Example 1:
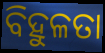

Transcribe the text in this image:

ବିହୁଳତା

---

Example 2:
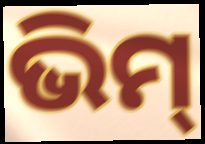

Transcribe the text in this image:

ଭିମ୍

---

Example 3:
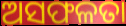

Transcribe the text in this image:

ଅସଫଳତା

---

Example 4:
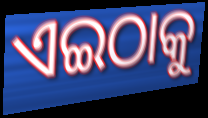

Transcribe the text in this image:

ଏଇଠାକୁ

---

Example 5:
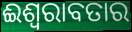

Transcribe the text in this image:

ଈଶ୍ୱରାବତାର